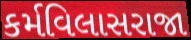
કર્મવિલાસરાજા